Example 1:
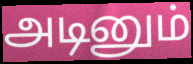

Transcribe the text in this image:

அடினும்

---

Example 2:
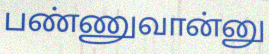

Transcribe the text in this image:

பண்ணுவான்னு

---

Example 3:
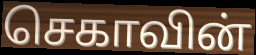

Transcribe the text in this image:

செகாவின்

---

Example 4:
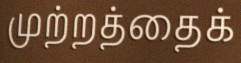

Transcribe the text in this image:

முற்றத்தைக்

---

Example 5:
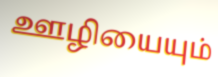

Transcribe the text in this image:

ஊழியையும்